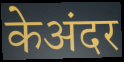
केअंदर